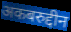
अकबरुद्दीन